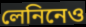
লেনিনেও